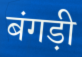
बंगड़ी